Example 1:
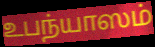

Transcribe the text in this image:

உபந்யாஸம்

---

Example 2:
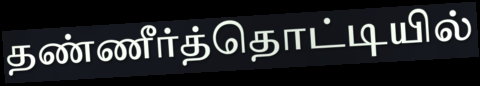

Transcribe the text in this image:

தண்ணீர்த்தொட்டியில்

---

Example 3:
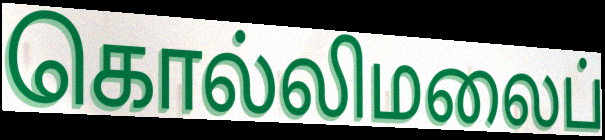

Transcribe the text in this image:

கொல்லிமலைப்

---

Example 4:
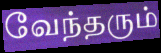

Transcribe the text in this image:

வேந்தரும்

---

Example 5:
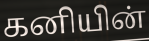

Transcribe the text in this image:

கனியின்